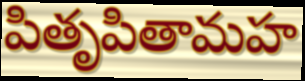
పితృపితామహ